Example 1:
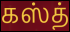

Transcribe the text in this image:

கஸ்த்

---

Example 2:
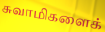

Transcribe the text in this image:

சுவாமிகளைக்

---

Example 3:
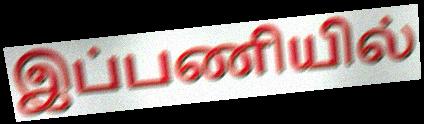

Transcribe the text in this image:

இப்பணியில்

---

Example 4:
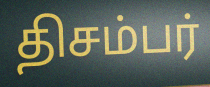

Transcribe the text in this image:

திசம்பர்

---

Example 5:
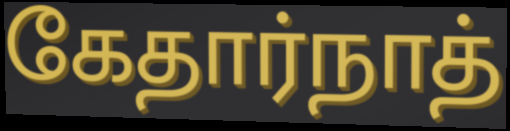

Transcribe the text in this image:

கேதார்நாத்